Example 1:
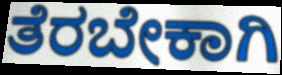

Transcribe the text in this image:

ತೆರಬೇಕಾಗಿ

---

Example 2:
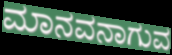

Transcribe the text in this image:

ಮಾನವನಾಗುವ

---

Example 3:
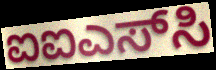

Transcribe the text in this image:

ಐಐಎಸ್‌ಸಿ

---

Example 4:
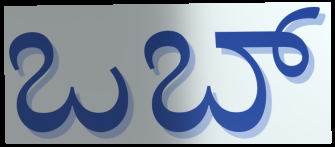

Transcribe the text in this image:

ಒಬ್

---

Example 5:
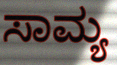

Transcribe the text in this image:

ಸಾಮ್ಯ